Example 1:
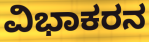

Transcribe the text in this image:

ವಿಭಾಕರನ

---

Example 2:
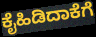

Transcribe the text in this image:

ಕೈಹಿಡಿದಾಕೆಗೆ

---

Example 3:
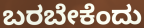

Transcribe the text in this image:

ಬರಬೇಕೆಂದು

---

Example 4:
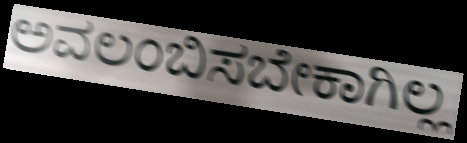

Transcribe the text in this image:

ಅವಲಂಬಿಸಬೇಕಾಗಿಲ್ಲ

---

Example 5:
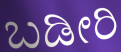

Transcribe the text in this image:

ಬಡೀರಿ